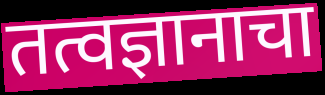
तत्वज्ञानाचा